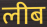
लीब